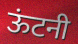
ऊंटनी